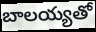
బాలయ్యతో